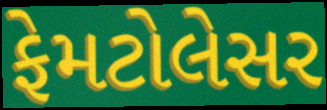
ફેમટોલેસર